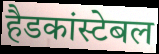
हैडकांस्टेबल